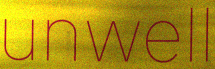
unwell